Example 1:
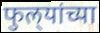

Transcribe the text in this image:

फुल्यांच्या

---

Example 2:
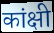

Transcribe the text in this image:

कांक्षी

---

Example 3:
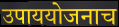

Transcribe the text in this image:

उपाययोजनाच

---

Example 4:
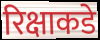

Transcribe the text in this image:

रिक्षाकडे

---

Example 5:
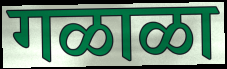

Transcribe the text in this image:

गळाळा